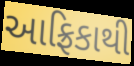
આફ્રિકાથી